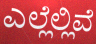
ಎಲ್ಲೆಲ್ಲಿವೆ